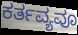
ಕರ್ತವ್ಯವೂ